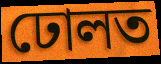
ঢোলত